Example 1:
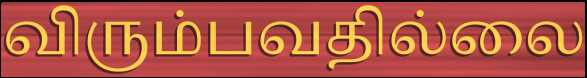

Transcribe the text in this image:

விரும்பவதில்லை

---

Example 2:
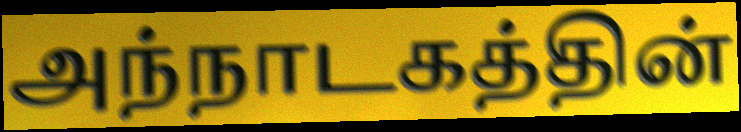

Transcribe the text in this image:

அந்நாடகத்தின்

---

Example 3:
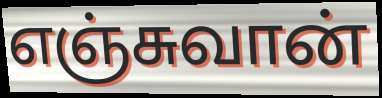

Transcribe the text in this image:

எஞ்சுவான்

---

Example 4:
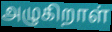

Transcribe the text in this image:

அழுகிறாள்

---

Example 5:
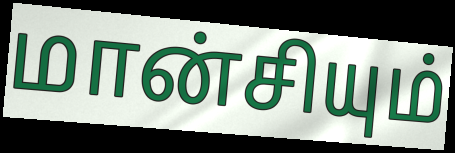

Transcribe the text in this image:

மான்சியும்